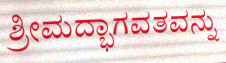
ಶ್ರೀಮದ್ಭಾಗವತವನ್ನು